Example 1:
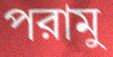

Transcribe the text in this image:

পরামু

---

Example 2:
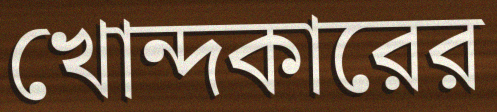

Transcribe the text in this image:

খোন্দকারের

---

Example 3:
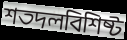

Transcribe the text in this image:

শতদলবিশিষ্ট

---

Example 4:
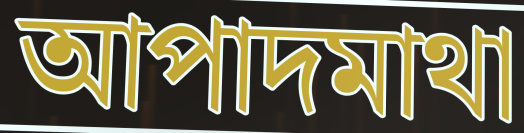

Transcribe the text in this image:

আপাদমাথা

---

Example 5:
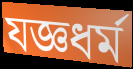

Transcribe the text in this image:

যজ্ঞধর্ম